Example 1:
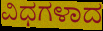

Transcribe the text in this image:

ವಿಧಗಳಾದ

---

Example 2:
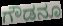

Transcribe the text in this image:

ಗೌಡನೂ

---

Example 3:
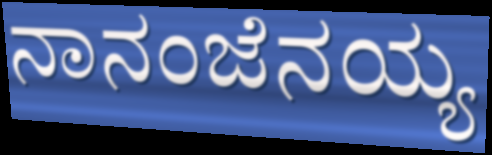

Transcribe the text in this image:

ನಾನಂಜೆನಯ್ಯ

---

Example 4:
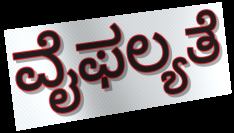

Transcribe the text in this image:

ವೈಫಲ್ಯತೆ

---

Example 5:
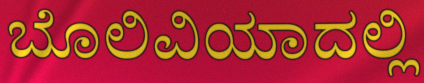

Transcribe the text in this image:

ಬೊಲಿವಿಯಾದಲ್ಲಿ